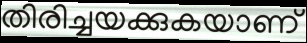
തിരിച്ചയക്കുകയാണ്